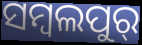
ସମ୍ବଲପୁର୍